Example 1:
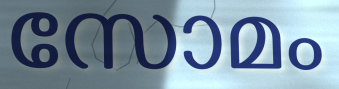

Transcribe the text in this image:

സോമം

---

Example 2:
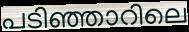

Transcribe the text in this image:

പടിഞ്ഞാറിലെ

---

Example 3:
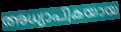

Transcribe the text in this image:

അധ്യാപികയായ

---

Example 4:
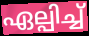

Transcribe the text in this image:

ഏല്പിച്ച്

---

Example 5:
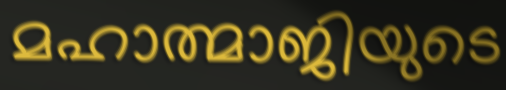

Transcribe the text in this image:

മഹാത്മാജിയുടെ